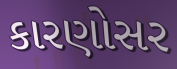
કારણોસર